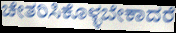
ಚೇತರಿಸಿಕೊಳ್ಳಬೇಕಾದರೆ